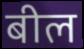
बील